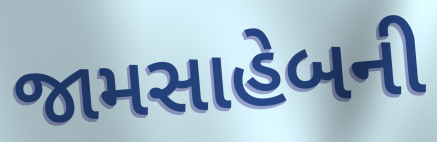
જામસાહેબની